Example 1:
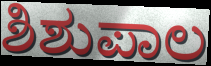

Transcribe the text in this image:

ಶಿಶುಪಾಲ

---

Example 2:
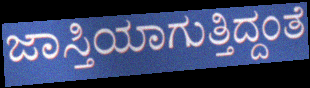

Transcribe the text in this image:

ಜಾಸ್ತಿಯಾಗುತ್ತಿದ್ದಂತೆ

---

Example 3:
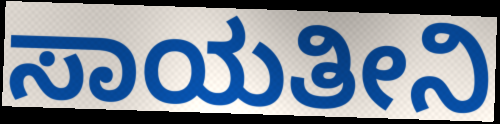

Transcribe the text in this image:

ಸಾಯತೀನಿ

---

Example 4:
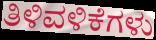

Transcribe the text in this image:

ತಿಳಿವಳಿಕೆಗಳು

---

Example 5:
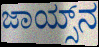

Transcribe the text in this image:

ಜಾಯ್ಸ್‌ನ